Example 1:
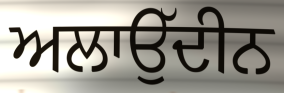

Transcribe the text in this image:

ਅਲਾਉੱਦੀਨ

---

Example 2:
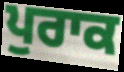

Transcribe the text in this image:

ਪੁਰਾਕ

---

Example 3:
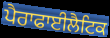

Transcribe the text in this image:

ਪੈਰਾਫਾਈਲੈਟਿਕ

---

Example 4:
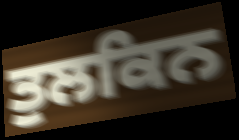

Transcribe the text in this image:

ਤੁਲਕਿਨ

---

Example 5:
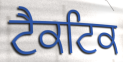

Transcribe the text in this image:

ਟੈਕਟਿਕ